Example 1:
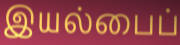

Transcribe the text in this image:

இயல்பைப்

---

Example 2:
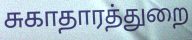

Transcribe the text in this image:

சுகாதாரத்துறை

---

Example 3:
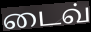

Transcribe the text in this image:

டைவ்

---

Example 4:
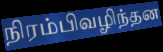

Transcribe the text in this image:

நிரம்பிவழிந்தன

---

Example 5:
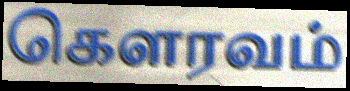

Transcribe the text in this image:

கெளரவம்